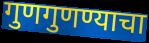
गुणगुणण्याचा